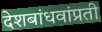
देशबांधवांप्रती